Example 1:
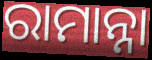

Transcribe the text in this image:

ରାମାନ୍ନା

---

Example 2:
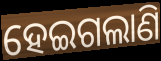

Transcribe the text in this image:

ହେଇଗଲାଣି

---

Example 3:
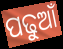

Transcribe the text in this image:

ପଢୁଆଁ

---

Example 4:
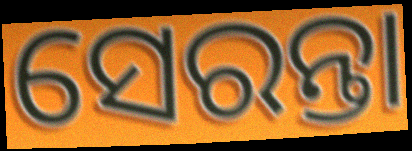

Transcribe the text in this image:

ସେରନ୍ତା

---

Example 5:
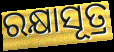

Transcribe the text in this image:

ରକ୍ଷାସୂତ୍ର